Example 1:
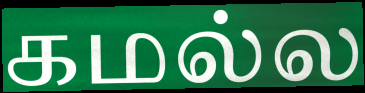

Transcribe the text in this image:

கமல்ல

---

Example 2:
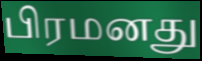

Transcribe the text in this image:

பிரமனது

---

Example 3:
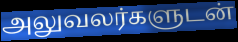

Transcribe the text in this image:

அலுவலர்களுடன்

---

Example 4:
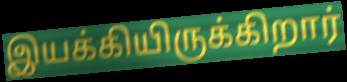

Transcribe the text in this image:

இயக்கியிருக்கிறார்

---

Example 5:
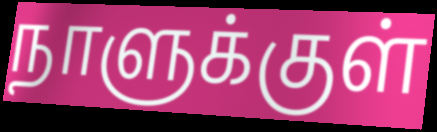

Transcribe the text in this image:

நாளுக்குள்